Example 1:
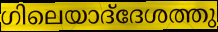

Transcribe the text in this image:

ഗിലെയാദ്‌ദേശത്തു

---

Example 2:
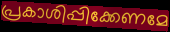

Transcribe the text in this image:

പ്രകാശിപ്പിക്കേണമേ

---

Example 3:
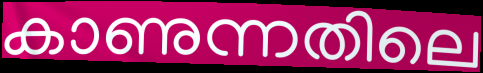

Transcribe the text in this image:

കാണുന്നതിലെ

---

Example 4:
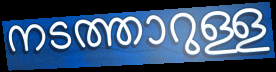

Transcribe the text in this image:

നടത്താറുള്ള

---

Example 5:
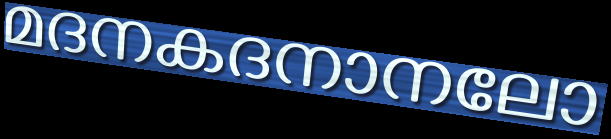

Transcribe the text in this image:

മദനകദനാനലോ